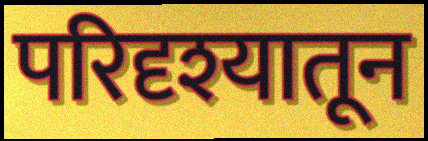
परिदृश्यातून